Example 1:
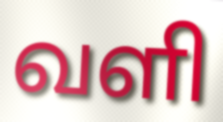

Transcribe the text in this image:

வளி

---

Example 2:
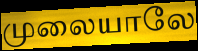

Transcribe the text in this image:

முலையாலே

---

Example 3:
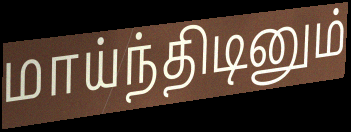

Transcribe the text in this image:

மாய்ந்திடினும்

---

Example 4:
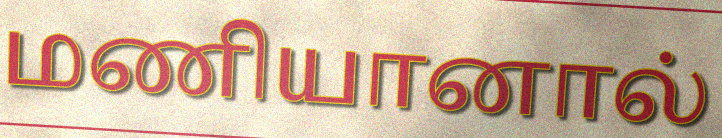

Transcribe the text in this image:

மணியானால்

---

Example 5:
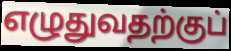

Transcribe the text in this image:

எழுதுவதற்குப்